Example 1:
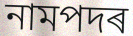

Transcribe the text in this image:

নামপদৰ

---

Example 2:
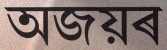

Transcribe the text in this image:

অজয়ৰ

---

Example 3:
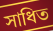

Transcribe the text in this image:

সাধিত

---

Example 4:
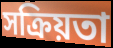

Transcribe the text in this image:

সক্ৰিয়তা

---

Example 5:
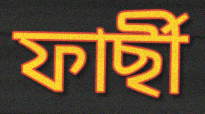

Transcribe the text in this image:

ফাৰ্ছী